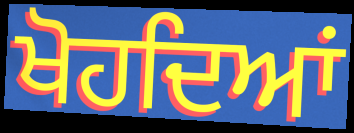
ਖੋਹਦਿਆਂ